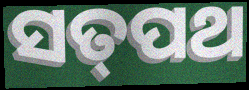
ସତ୍‌ପଥ